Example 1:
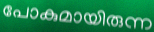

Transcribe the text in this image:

പോകുമായിരുന്ന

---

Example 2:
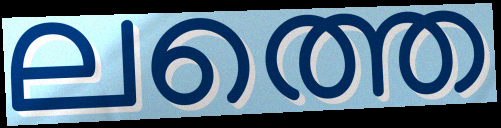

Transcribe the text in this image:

ലത്തെ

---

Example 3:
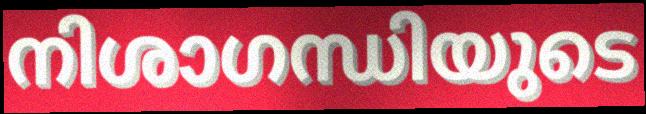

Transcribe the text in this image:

നിശാഗന്ധിയുടെ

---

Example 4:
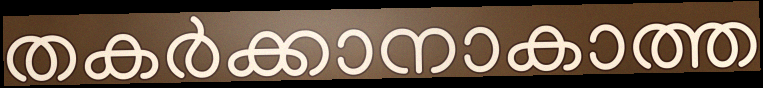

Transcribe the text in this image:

തകർക്കാനാകാത്ത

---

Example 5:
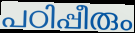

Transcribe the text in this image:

പഠിപ്പീരും